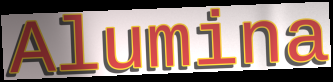
Alumina